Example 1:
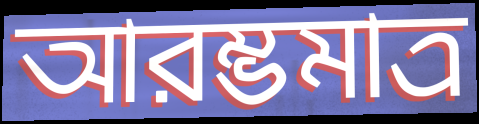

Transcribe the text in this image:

আরম্ভমাত্র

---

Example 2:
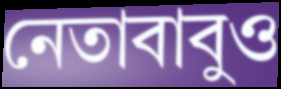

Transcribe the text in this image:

নেতাবাবুও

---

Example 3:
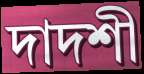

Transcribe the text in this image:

দাদশী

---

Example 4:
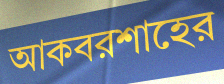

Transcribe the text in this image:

আকবরশাহের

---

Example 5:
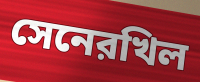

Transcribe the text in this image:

সেনেরখিল